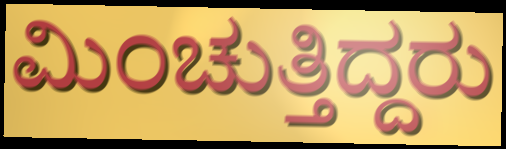
ಮಿಂಚುತ್ತಿದ್ದರು